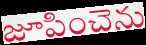
జూపించెను